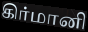
கிர்மானி